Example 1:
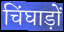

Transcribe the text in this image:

चिंघाड़ों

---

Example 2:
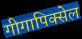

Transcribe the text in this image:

गीगापिक्सेल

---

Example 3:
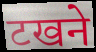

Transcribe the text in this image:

टखने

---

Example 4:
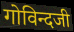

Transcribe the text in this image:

गोविन्दजी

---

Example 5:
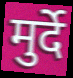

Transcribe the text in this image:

मुर्दे